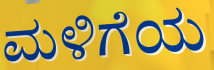
ಮಳಿಗೆಯ